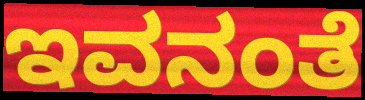
ಇವನಂತೆ